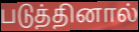
படுத்தினால்